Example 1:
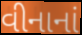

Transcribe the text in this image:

વીનાનાં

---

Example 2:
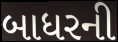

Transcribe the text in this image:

બાધરની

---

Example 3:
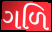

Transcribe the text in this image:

ગળિ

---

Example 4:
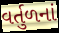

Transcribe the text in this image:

વર્તુળનાં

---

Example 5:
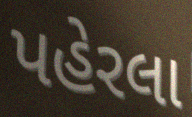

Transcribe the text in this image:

પહેરલા